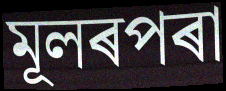
মূলৰপৰা